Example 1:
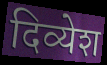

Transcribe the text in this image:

दिव्येश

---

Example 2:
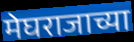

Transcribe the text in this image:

मेघराजाच्या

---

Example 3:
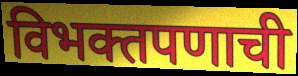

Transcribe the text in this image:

विभक्तपणाची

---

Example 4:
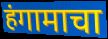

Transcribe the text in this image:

हंगामाचा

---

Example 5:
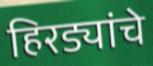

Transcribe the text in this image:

हिरड्यांचे